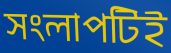
সংলাপটিই